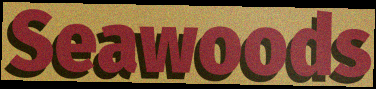
Seawoods